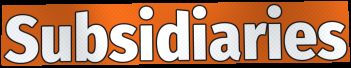
Subsidiaries